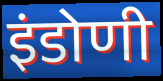
इंडोणी